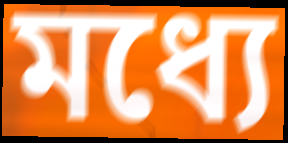
মধ্যে